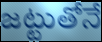
జట్టుతోనే